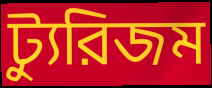
ট্যুরিজম